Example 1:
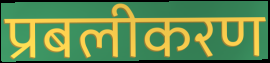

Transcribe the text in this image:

प्रबलीकरण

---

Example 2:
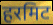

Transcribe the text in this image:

हरमिट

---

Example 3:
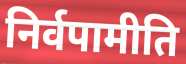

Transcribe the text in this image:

निर्वपामीति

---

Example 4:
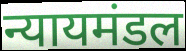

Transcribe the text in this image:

न्यायमंडल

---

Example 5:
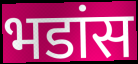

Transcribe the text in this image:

भडांस